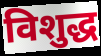
विशुद्ध